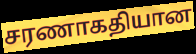
சரணாகதியான